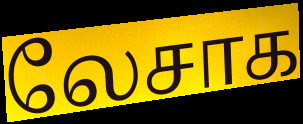
லேசாக